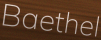
Baethel